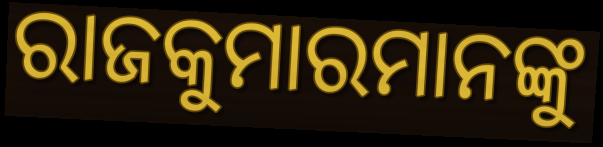
ରାଜକୁମାରମାନଙ୍କୁ